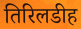
तिरिलडीह